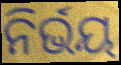
ନିର୍ଭୟ